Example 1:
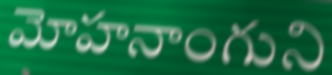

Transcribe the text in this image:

మోహనాంగుని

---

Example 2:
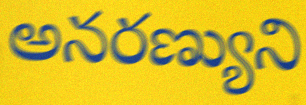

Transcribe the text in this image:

అనరణ్యుని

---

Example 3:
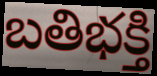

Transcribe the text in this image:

బతిభక్తి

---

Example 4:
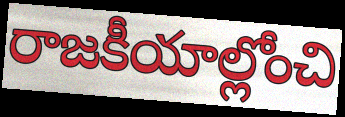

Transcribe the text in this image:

రాజకీయాల్లోంచి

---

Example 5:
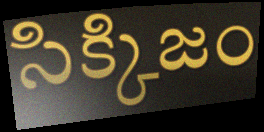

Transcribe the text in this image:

సిక్కిజం